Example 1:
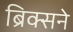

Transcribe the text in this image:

ब्रिक्सने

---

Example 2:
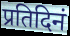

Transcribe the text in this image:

प्रतिदिनं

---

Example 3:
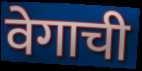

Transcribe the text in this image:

वेगाची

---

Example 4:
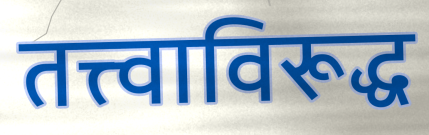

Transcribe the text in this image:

तत्त्वाविरूद्ध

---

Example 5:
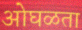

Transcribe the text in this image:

ओघळता